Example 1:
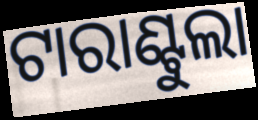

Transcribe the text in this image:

ଟାରାଣ୍ଟୁଲା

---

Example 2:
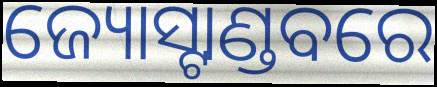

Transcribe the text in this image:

ଜ୍ୟୋସ୍ଟାଣ୍ଡବରେ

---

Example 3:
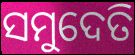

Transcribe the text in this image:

ସମୁଦେତି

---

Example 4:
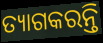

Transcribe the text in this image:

ତ୍ୟାଗକରନ୍ତି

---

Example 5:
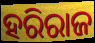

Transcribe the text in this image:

ହରିରାଜ